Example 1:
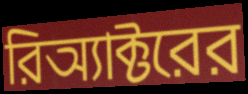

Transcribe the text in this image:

রিঅ্যাক্টরের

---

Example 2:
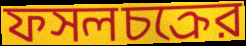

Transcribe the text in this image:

ফসলচক্রের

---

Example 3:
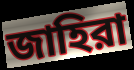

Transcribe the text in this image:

জাহিরা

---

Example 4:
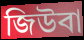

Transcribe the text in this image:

জিউবা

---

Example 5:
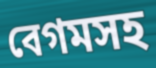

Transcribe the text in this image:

বেগমসহ